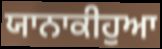
ਯਾਨਾਕੀਹੁਆ